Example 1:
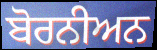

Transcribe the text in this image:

ਬੋਰਨੀਅਨ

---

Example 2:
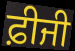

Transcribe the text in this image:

ਫ਼ੀਜੀ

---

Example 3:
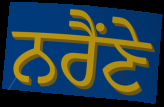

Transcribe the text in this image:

ਨਰੈਂਣੇ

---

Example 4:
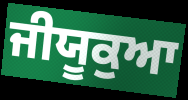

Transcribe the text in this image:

ਜੀਯੂਕੁਆ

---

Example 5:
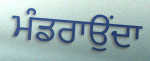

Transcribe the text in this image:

ਮੰਡਰਾਉਂਦਾ